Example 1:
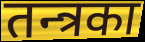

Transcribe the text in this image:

तन्त्रका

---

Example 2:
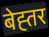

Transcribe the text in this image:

बेह्तर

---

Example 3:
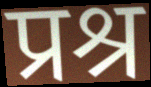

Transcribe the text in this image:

प्रश्र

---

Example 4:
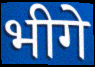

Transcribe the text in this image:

भीगे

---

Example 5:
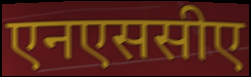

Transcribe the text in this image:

एनएससीए